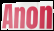
Anon